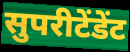
सुपरीटेंडेंट